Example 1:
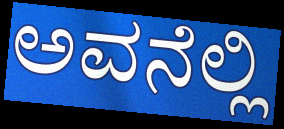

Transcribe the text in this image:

ಅವನೆಲ್ಲಿ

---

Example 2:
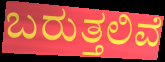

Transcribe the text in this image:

ಬರುತ್ತಲಿವೆ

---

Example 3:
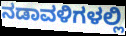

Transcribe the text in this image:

ನಡಾವಳಿಗಳಲ್ಲಿ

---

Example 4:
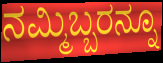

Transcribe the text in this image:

ನಮ್ಮಿಬ್ಬರನ್ನೂ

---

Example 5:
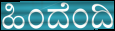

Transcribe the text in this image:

ಹಿಂದೆಂದಿ